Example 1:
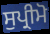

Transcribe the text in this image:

ਸੁਪ੍ਰੀਮੋ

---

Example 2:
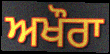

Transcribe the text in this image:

ਅਖੌਰਾ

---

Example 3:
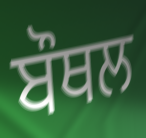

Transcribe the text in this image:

ਬੌਥਲ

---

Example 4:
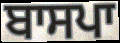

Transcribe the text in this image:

ਬਾਸਪਾ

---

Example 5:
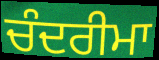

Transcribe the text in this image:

ਚੰਦਰੀਮਾ